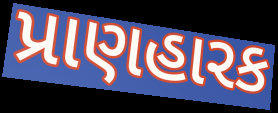
પ્રાણહારક